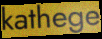
kathege